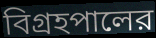
বিগ্রহপালের